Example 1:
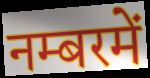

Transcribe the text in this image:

नम्बरमें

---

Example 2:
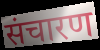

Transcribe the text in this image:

संचारण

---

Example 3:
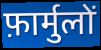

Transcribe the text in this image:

फ़ार्मुलों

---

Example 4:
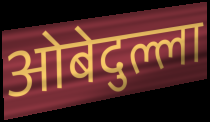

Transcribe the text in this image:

ओबेदुल्ला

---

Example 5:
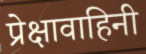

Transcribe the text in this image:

प्रेक्षावाहिनी